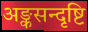
अङ्कसन्दृष्टि